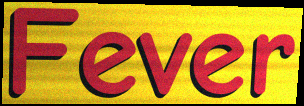
Fever